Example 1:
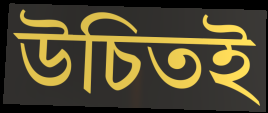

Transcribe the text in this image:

উচিতই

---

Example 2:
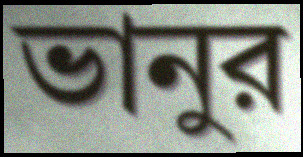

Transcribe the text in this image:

ভানুর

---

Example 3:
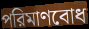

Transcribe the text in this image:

পরিমাণবোধ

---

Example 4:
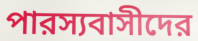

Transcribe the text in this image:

পারস্যবাসীদের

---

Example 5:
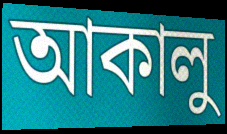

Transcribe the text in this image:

আকালু